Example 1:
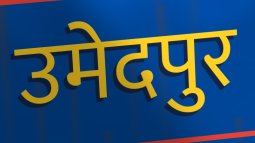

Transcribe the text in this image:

उमेदपुर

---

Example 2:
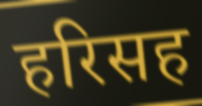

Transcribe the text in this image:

हरिसह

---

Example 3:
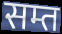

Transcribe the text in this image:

सम्त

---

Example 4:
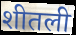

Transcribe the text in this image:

शीतली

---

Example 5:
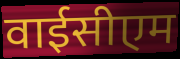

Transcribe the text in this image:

वाईसीएम